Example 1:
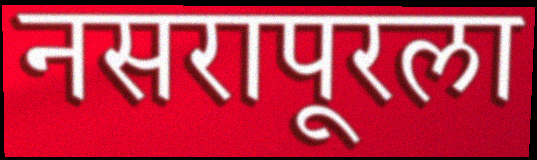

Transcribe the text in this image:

नसरापूरला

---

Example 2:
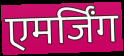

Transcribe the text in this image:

एमर्जिंग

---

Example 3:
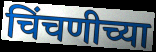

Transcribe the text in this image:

चिंचणीच्या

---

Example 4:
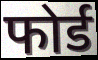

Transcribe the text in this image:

फोर्ड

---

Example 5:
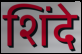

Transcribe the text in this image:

शिंदे